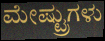
ಮೇಷ್ಟ್ರುಗಳು